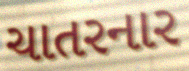
ચાતરનાર